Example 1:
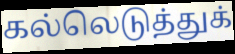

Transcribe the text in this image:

கல்லெடுத்துக்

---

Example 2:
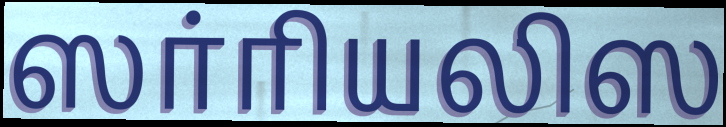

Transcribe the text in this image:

ஸர்ரியலிஸ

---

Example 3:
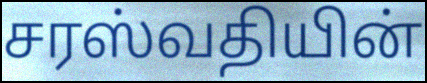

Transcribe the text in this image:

சரஸ்வதியின்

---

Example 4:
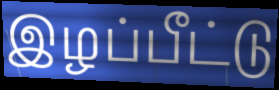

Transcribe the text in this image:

இழப்பீட்டு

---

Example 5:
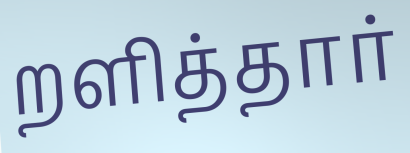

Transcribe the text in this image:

றளித்தார்